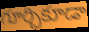
గూర్చికూడా